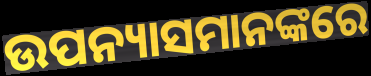
ଉପନ୍ୟାସମାନଙ୍କରେ